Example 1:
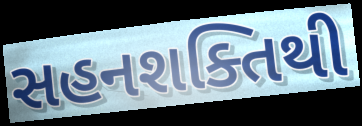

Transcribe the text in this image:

સહનશક્તિથી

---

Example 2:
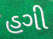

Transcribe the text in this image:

હગી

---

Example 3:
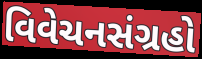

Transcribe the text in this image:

વિવેચનસંગ્રહો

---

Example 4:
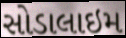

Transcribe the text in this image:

સોડાલાઇમ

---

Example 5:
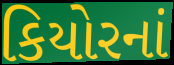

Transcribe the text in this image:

કિયોરનાં